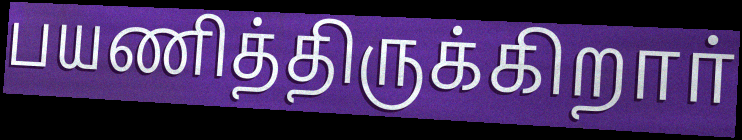
பயணித்திருக்கிறார்